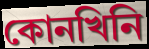
কোনখিনি